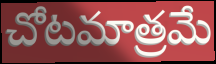
చోటమాత్రమే